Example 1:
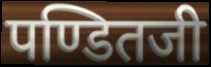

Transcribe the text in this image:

पण्डितजी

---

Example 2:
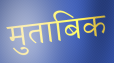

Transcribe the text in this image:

मुताबिक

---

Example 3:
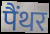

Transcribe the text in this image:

पैंथर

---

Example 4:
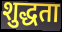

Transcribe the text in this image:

शुद्धता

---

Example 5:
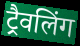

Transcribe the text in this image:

ट्रैवलिंग